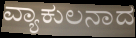
ವ್ಯಾಕುಲನಾದ